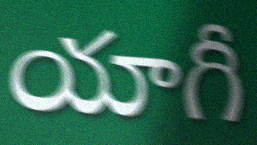
యాగీ